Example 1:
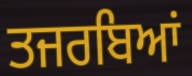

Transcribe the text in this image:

ਤਜਰਬਿਆਂ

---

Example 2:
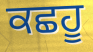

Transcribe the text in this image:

ਕਛਹੂ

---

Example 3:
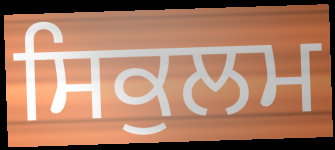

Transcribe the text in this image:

ਸਿਕੁਲਮ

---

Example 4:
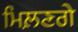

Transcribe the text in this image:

ਮਿਲ਼ਣਗੇ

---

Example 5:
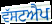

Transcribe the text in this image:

ਵੱਸਟਐਪ